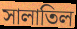
সালাতিল